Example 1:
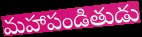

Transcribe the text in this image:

మహాపండితుడు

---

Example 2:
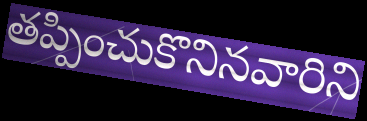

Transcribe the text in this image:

తప్పించుకొనినవారిని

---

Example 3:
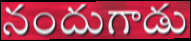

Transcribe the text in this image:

నందుగాడు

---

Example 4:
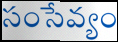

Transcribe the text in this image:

సంసేవ్యం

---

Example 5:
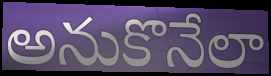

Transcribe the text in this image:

అనుకొనేలా